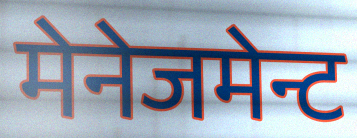
मेनेजमेन्ट